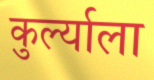
कुर्ल्याला